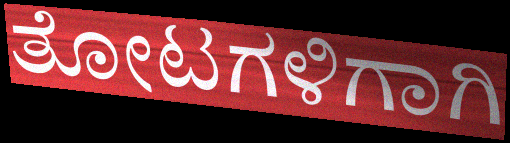
ತೋಟಗಳಿಗಾಗಿ